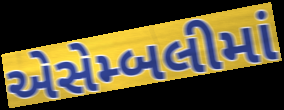
એસેમ્બલીમાં